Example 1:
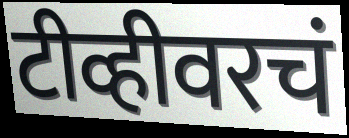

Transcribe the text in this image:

टीव्हीवरचं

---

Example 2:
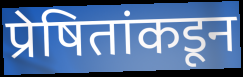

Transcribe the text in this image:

प्रेषितांकडून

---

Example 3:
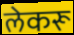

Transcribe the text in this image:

लेकरू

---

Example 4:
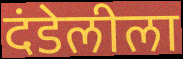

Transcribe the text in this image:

दंडेलीला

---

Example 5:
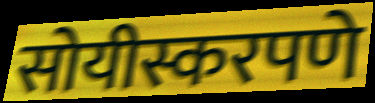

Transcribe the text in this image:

सोयीस्करपणे